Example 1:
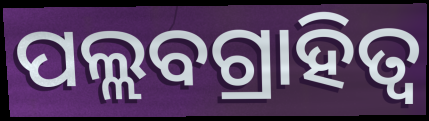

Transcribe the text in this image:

ପଲ୍ଲବଗ୍ରାହିତ୍ୱ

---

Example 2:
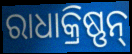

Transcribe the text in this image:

ରାଧାକ୍ରିଷ୍ଣନ୍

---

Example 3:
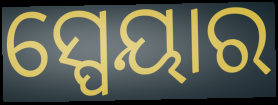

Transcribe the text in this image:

ସ୍ପେୟାର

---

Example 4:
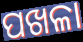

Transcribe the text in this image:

ପଖଳା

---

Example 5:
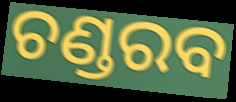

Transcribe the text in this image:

ଚଣ୍ଡରବ